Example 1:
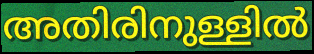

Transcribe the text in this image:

അതിരിനുള്ളിൽ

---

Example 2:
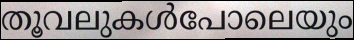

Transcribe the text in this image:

തൂവലുകൾപോലെയും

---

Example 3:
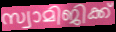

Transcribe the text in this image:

സ്വാമിജിക്ക്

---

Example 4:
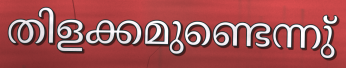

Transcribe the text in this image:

തിളക്കമുണ്ടെന്നു്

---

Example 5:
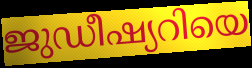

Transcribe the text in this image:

ജുഡീഷ്യറിയെ